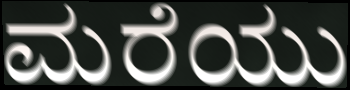
ಮರೆಯು